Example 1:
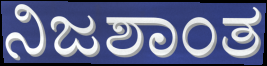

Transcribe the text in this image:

ನಿಜಶಾಂತ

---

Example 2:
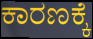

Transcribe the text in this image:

ಕಾರಣಕ್ಕೆ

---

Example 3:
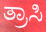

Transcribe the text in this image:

ತ್ರಾಸಿ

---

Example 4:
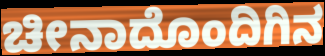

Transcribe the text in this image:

ಚೀನಾದೊಂದಿಗಿನ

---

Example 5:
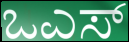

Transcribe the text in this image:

ಒಎಸ್